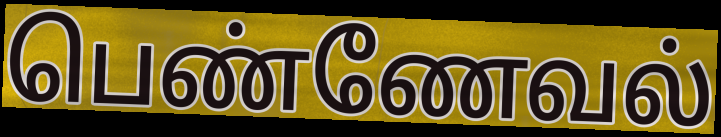
பெண்ணேவல்